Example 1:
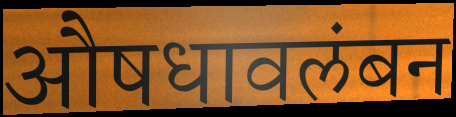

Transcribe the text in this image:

औषधावलंबन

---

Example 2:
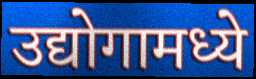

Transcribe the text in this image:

उद्योगामध्ये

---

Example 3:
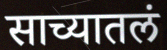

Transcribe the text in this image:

साच्यातलं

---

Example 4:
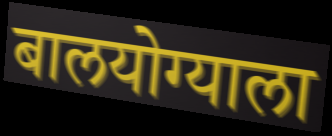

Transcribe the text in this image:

बालयोग्याला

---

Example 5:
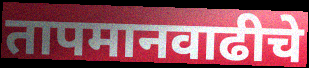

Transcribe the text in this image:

तापमानवाढीचे